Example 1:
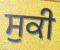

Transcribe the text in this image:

ਸੁਕੀ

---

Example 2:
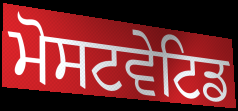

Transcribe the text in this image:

ਮੋਸਟਵੇਟਿਡ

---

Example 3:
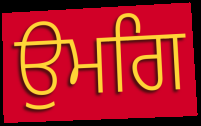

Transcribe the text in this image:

ਉਮਗਿ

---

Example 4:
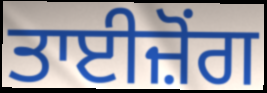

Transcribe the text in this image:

ਤਾਈਜ਼ੋਂਗ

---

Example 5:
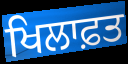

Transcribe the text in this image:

ਖਿਲਾਫ਼ਤ